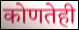
कोणतेही